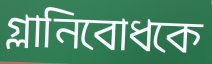
গ্লানিবোধকে